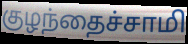
குழந்தைச்சாமி